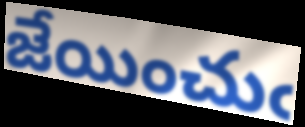
జేయించుఁ